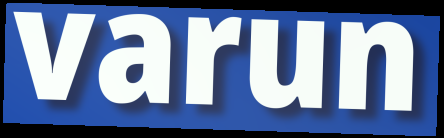
varun